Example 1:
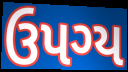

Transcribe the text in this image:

ઉપગ્ય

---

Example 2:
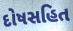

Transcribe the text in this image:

દોષસહિત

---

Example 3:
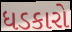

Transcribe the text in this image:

ધડકારો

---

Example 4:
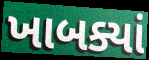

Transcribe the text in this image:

ખાબક્યાં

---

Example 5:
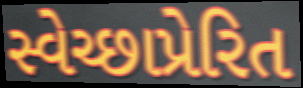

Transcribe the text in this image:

સ્વેચ્છાપ્રેરિત